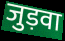
जुड़वा